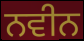
ਨਵੀਨ